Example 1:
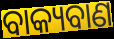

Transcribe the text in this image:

ବାକ୍ୟବାଣ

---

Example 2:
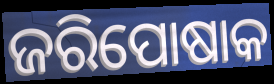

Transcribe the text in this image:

ଜରିପୋଷାକ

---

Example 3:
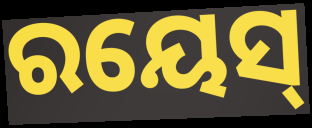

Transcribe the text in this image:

ରୟେସ୍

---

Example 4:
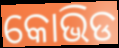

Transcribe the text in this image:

କୋଭିଡ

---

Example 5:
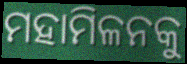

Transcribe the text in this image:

ମହାମିଳନକୁ